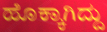
ಹೊಕ್ಕಾಗಿದ್ದು